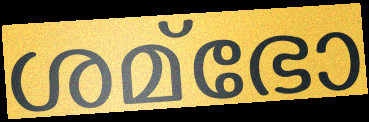
ശമ്ഭോ